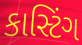
કાસ્ટિંગ